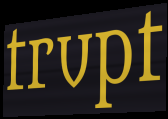
trupt